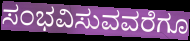
ಸಂಭವಿಸುವವರೆಗೂ